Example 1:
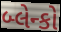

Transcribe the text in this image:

બ્લેન્કો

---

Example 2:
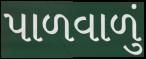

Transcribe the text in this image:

પાળવાળું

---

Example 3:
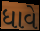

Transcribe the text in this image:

ધાવે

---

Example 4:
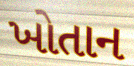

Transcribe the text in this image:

ખોતાન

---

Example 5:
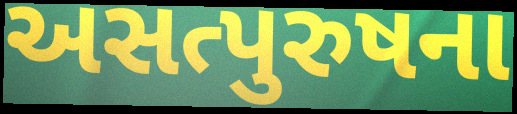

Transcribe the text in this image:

અસત્પુરુષના